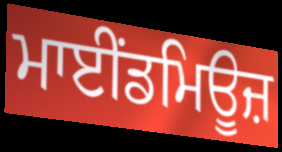
ਮਾਈਂਡਮਿਊਜ਼